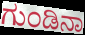
ಗುಂಡಿನಾ